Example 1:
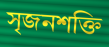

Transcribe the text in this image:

সৃজনশক্তি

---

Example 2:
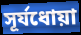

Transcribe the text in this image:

সূর্যধোয়া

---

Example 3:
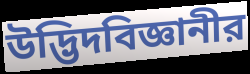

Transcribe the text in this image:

উদ্ভিদবিজ্ঞানীর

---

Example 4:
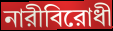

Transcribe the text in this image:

নারীবিরোধী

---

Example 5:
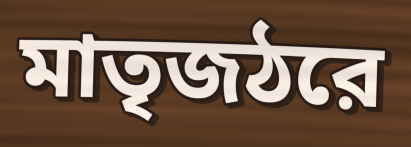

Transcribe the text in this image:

মাতৃজঠরে